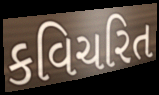
કવિચરિત